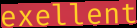
exellent